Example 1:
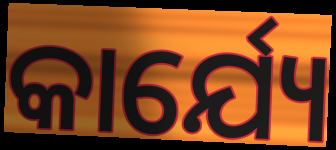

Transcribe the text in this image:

କାର୍ଯ୍ୟେ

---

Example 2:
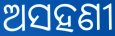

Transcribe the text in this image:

ଅସହଣୀ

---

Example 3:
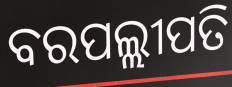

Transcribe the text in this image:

ବରପଲ୍ଲୀପତି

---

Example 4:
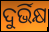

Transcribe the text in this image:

ଦୁର୍ଭିକ୍ଷ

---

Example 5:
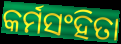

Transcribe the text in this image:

କର୍ମସଂହିତା